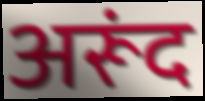
अरूंद